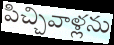
పిచ్చివాళ్లను